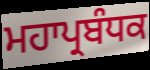
ਮਹਾਪ੍ਰਬੰਧਕ